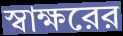
স্বাক্ষরের